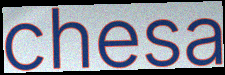
chesa